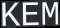
KEM